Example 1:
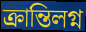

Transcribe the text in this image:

ক্রান্তিলগ্ন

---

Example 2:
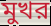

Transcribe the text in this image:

মুখর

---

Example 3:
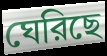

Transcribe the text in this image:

ঘেরিছে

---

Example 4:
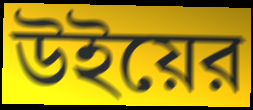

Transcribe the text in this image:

উইয়ের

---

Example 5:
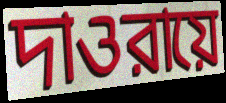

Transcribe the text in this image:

দাওরায়ে